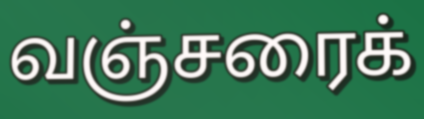
வஞ்சரைக்